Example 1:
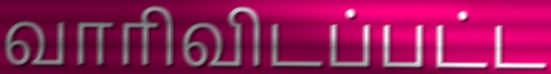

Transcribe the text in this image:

வாரிவிடப்பட்ட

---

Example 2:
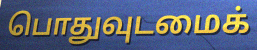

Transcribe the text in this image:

பொதுவுடமைக்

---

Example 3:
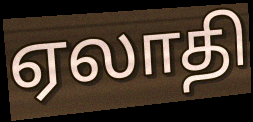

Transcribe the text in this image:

ஏலாதி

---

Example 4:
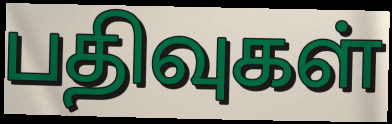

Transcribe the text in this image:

பதிவுகள்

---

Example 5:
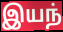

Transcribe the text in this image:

இயந்